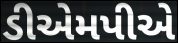
ડીએમપીએ